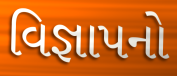
વિજ્ઞાપનો